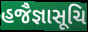
હજૈજ્ઞાસૂચિ